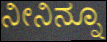
ನೀನಿನ್ನೂ